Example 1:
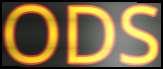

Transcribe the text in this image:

ODS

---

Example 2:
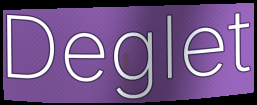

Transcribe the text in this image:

Deglet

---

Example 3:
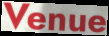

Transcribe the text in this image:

Venue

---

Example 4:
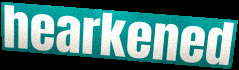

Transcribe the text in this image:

hearkened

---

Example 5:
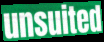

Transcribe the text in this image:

unsuited